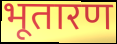
भूतारण